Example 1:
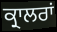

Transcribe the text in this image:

ਕ੍ਰਾਲਰਾਂ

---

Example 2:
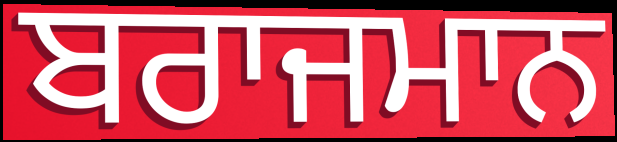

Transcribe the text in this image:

ਬਰਾਜਮਾਨ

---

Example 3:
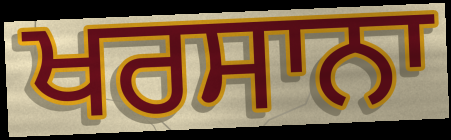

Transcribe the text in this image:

ਖਰਸਾਨਾ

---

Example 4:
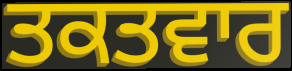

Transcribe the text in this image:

ਤਕਤਵਾਰ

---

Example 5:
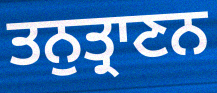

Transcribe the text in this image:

ਤਨੁਤ੍ਰਾਣਨ